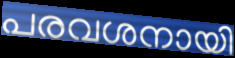
പരവശനായി